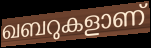
ഖബറുകളാണ്